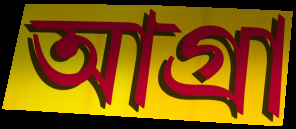
আগ্ৰা